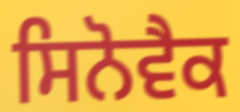
ਸਿਨੋਵੈਕ